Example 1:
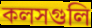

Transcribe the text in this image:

কলসগুলি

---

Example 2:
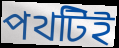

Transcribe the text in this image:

পথটিই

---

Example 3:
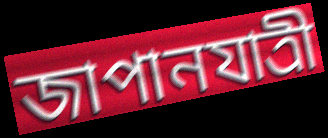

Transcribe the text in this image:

জাপানযাত্রী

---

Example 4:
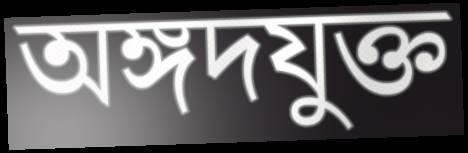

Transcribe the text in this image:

অঙ্গদযুক্ত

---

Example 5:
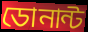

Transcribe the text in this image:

ডোনান্ট